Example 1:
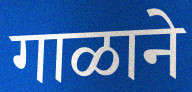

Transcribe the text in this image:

गाळाने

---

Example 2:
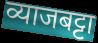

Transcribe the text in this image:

व्याजबट्टा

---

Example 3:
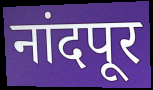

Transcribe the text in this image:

नांदपूर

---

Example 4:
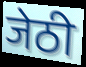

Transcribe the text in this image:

जेठी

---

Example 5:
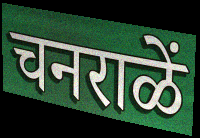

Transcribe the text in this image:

चनराळें